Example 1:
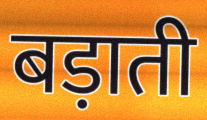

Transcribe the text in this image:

बड़ाती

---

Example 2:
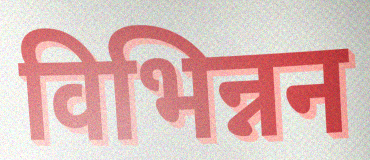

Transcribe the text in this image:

विभिन्नन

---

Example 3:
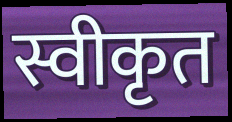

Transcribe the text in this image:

स्वीकृत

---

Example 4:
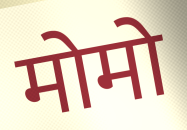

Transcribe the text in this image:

मोमो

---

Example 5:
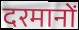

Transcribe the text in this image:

दरमानों